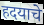
हदयाचे